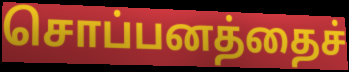
சொப்பனத்தைச்